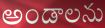
అండాలను